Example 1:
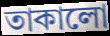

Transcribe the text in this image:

তাকালো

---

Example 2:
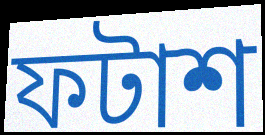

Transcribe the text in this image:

ফটাশ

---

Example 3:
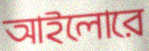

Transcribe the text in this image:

আইলোরে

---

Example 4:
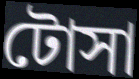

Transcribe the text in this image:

টোসা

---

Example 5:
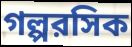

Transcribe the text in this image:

গল্পরসিক